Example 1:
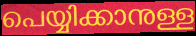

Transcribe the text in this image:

പെയ്യിക്കാനുള്ള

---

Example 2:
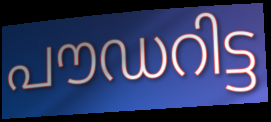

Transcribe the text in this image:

പൗഡറിട്ട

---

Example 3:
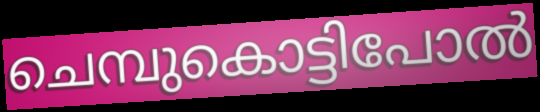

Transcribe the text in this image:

ചെമ്പുകൊട്ടിപോൽ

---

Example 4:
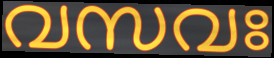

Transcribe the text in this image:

വസവഃ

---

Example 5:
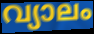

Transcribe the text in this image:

വ്യാലം